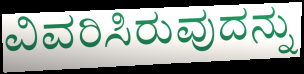
ವಿವರಿಸಿರುವುದನ್ನು